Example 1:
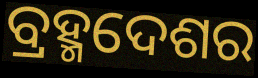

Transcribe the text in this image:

ବ୍ରହ୍ମଦେଶର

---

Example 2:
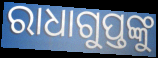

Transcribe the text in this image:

ରାଧାଗୁପ୍ତଙ୍କୁ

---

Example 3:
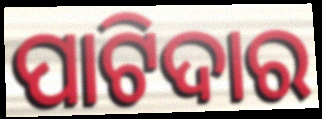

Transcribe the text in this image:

ପାଟିଦାର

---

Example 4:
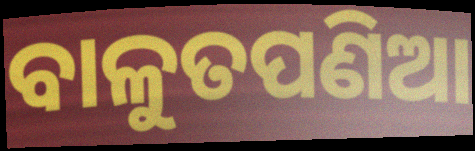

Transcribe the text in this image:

ବାଳୁତପଣିଆ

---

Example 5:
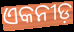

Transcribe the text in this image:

ଏକନୀଡ଼